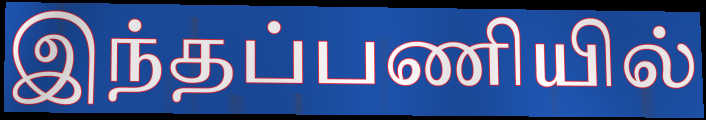
இந்தப்பணியில்